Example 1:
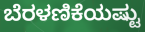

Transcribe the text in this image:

ಬೆರಳಣಿಕೆಯಷ್ಟು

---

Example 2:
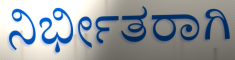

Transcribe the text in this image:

ನಿರ್ಭೀತರಾಗಿ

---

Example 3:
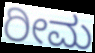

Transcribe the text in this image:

ರೀಮ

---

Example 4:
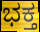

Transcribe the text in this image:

ಭಕ್ತ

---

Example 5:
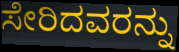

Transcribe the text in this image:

ಸೇರಿದವರನ್ನು